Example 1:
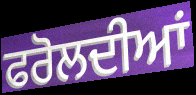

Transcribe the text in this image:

ਫਰੋਲਦੀਆਂ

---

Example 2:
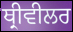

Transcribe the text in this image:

ਥ੍ਰੀਵੀਲਰ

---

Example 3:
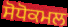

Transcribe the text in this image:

ਸੋਧੋਕਮਲ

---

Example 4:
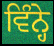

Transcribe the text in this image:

ਵਿੰਨ੍ਹੇ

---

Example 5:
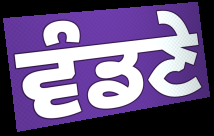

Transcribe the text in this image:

ਵੰਡਣੇ